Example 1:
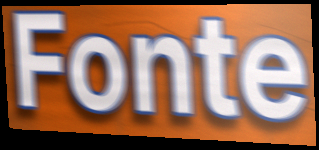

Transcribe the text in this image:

Fonte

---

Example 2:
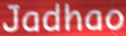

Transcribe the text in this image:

Jadhao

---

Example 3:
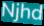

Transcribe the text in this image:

Njhd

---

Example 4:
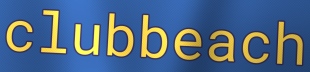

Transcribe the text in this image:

clubbeach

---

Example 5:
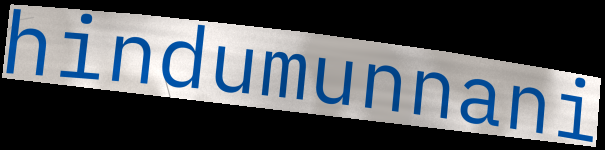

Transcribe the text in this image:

hindumunnani